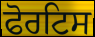
ਫੋਰਟਿਸ